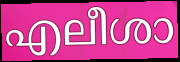
എലീശാ